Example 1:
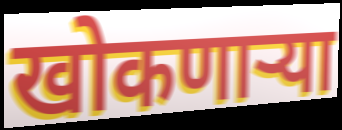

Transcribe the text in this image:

खोकणाऱ्या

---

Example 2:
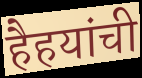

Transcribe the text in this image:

हैहयांची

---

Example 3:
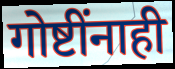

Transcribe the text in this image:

गोष्टींनाही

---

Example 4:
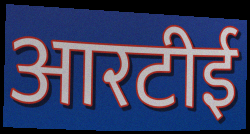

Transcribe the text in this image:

आरटीई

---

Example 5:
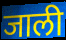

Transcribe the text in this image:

जाली